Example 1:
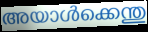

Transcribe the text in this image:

അയാൾക്കെന്തു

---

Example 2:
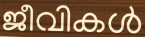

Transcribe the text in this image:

ജീവികൾ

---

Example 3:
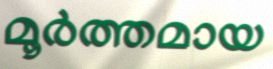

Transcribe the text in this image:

മൂർത്തമായ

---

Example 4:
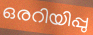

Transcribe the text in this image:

ഒരറിയിപ്പു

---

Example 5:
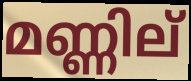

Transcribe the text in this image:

മണ്ണില്